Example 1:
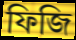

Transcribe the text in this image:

ফিজি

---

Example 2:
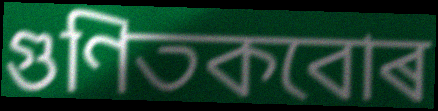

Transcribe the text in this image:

গুণিতকবোৰ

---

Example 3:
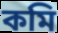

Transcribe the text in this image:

কমি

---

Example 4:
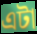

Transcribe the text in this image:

এটা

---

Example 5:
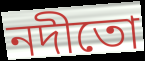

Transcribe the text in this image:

নদীতো